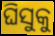
ଘିସୁକୁ